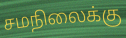
சமநிலைக்கு